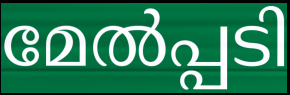
മേൽപ്പടി